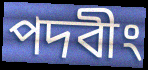
পদবীং